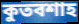
কুতবশাহ